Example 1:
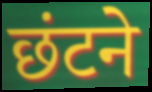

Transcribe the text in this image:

छंटने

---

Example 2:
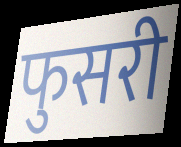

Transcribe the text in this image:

फुसरी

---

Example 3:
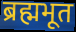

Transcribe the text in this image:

ब्रह्मभूत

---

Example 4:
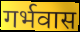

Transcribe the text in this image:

गर्भवास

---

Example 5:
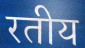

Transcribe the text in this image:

रतीय